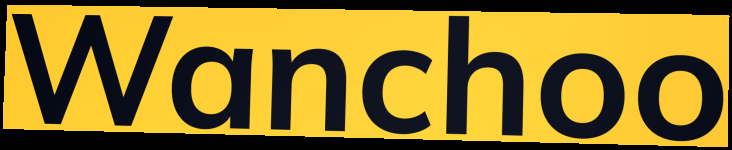
Wanchoo